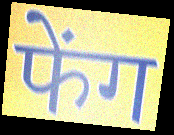
फेंग